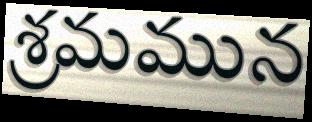
శ్రమమున